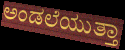
ಅಂಡಲೆಯುತ್ತಾ